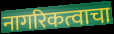
नागरिकत्वाचा